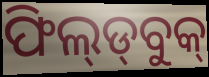
ଫିଲ୍‍ଡ୍‍ବୁକ୍